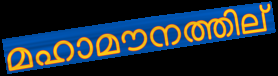
മഹാമൗനത്തില്